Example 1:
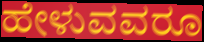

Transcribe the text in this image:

ಹೇಳುವವರೂ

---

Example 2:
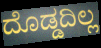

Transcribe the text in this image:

ದೊಡ್ಡದಿಲ್ಲ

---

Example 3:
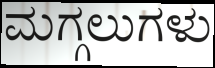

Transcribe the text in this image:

ಮಗ್ಗಲುಗಳು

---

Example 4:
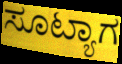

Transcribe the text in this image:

ಸೂಟ್ಯಾಗ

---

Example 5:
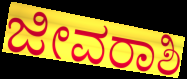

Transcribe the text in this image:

ಜೀವರಾಶಿ